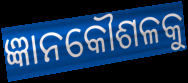
ଜ୍ଞାନକୌଶଳକୁ